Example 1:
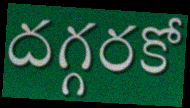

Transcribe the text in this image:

దగ్గరకో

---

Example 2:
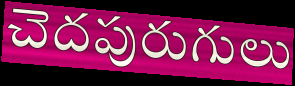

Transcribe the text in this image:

చెదపురుగులు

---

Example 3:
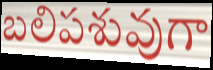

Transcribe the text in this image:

బలిపశువుగా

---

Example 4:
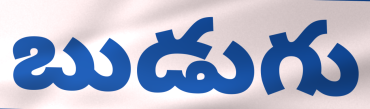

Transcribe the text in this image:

బుడుగు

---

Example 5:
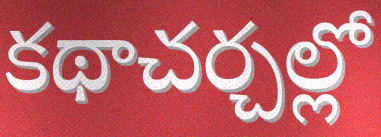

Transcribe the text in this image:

కథాచర్చల్లో